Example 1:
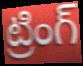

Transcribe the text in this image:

ట్రింగ్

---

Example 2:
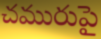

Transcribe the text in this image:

చమురుపై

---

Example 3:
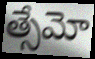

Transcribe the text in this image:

త్సేమో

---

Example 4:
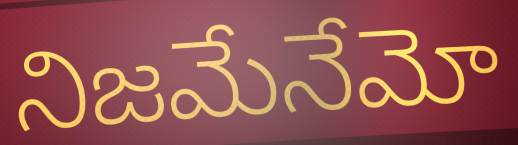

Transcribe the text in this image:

నిజమేనేమో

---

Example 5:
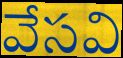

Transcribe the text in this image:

వేసవి